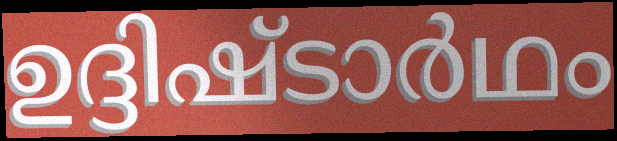
ഉദ്ദിഷ്ടാർഥം